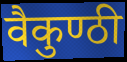
वैकुण्ठी